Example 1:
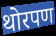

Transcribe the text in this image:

थोरपण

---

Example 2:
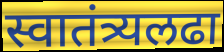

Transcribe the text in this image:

स्वातंत्र्यलढा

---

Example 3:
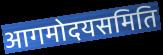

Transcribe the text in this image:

आगमोदयसमिति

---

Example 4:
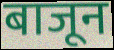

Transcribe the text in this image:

बाजून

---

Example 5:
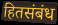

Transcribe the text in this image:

हितसंबंध